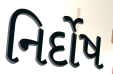
નિર્દોષ